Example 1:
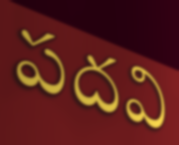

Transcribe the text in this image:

పదవి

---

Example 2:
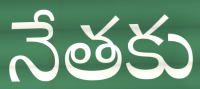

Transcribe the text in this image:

నేతకు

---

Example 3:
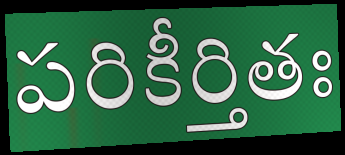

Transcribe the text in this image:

పరికీర్తితః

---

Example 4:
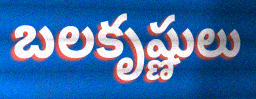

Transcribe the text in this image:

బలకృష్ణులు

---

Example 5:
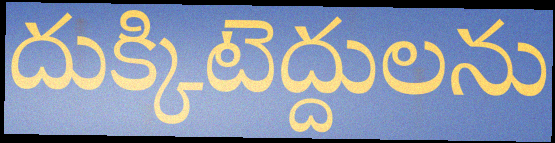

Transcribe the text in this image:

దుక్కిటెద్దులను